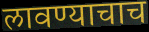
लावण्याचाच